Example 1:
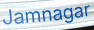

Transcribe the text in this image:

Jamnagar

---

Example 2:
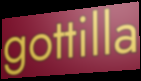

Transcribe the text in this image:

gottilla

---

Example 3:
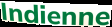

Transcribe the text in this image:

Indienne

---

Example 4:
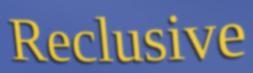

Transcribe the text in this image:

Reclusive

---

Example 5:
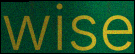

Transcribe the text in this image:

wise